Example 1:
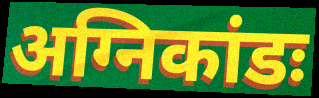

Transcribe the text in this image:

अग्निकांडः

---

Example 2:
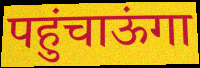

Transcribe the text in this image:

पहुंचाऊंगा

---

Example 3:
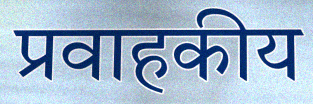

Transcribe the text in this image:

प्रवाहकीय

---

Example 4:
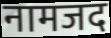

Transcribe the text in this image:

नामजद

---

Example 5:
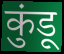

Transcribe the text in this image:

कुंडू